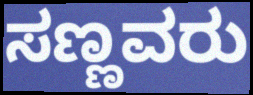
ಸಣ್ಣವರು